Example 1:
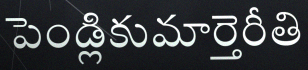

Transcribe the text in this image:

పెండ్లికుమార్తెరీతి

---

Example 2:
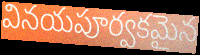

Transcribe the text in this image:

వినయపూర్వకమైన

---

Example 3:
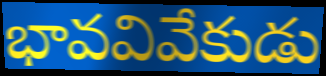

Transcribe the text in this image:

భావవివేకుడు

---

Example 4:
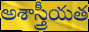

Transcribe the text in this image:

అశాస్త్రీయత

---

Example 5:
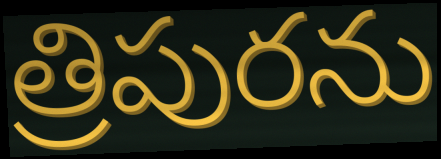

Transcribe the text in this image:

త్రిపురను